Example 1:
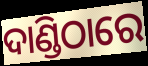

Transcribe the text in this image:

ଦାଣ୍ଡିଠାରେ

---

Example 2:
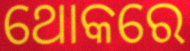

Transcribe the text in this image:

ଥୋକରେ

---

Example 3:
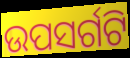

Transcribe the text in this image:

ଉପସର୍ଗଟି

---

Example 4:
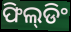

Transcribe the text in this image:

ଫିଲ୍‌ଡିଂ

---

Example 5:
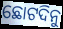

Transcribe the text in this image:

ଛୋଟଦିନୁ